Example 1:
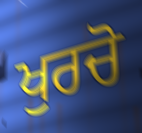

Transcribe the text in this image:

ਖੁਰਚੋ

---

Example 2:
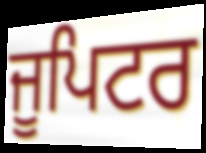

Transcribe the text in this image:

ਜੂਪਿਟਰ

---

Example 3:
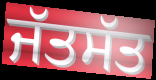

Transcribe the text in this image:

ਜੱਤਸੱਤ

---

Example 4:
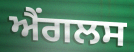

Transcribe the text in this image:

ਐਂਗਲਸ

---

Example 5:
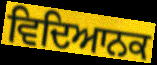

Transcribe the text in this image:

ਵਿਦਿਆਨਕ